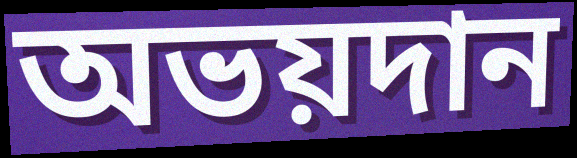
অভয়দান